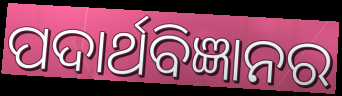
ପଦାର୍ଥବିଜ୍ଞାନର